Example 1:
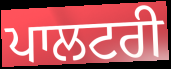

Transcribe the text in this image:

ਪਾਲਟਰੀ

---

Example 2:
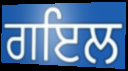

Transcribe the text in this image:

ਗਇਲ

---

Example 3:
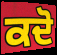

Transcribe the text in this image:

ਕਦੋ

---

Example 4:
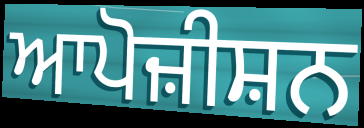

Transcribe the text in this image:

ਆਪੋਜ਼ੀਸ਼ਨ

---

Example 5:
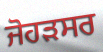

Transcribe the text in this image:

ਜੋਹੜਸਰ